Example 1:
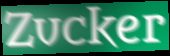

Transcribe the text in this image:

Zucker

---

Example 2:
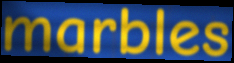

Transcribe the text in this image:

marbles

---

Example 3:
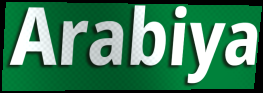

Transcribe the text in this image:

Arabiya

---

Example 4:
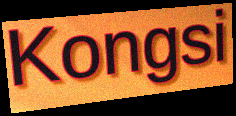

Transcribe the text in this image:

Kongsi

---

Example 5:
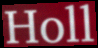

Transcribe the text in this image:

Holl